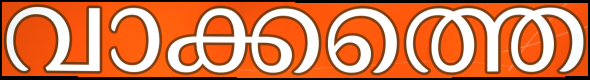
വാക്കത്തെ